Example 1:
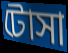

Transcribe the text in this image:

টোসা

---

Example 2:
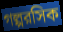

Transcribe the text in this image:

গল্পরসিক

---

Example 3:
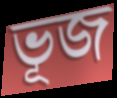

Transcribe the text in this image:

ভূজ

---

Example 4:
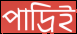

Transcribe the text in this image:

পাদ্রিই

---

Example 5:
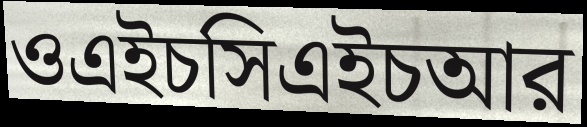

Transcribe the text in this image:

ওএইচসিএইচআর